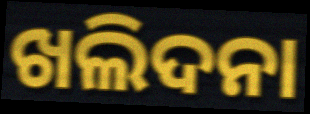
ଖଲିଦନା